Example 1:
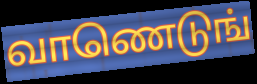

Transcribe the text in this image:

வாணெடுங்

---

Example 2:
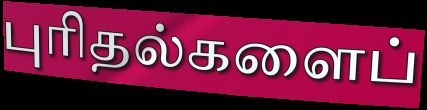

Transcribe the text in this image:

புரிதல்களைப்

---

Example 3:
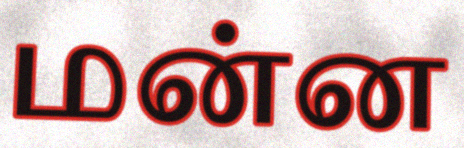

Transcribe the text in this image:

மன்ன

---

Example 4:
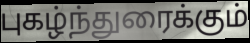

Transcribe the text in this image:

புகழ்ந்துரைக்கும்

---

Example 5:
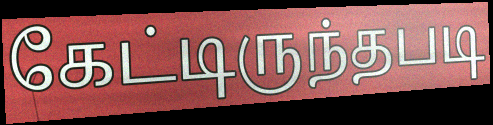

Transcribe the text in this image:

கேட்டிருந்தபடி